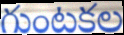
గుంటకల